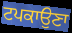
ਟਪਕਾਉਣਾ